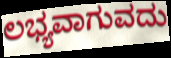
ಲಭ್ಯವಾಗುವದು